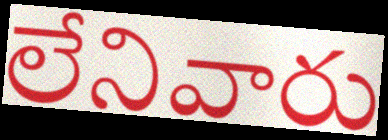
లేనివారు